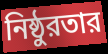
নিষ্ঠুরতার